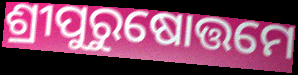
ଶ୍ରୀପୁରୁଷୋତ୍ତମେ